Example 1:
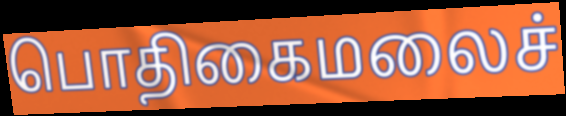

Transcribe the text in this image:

பொதிகைமலைச்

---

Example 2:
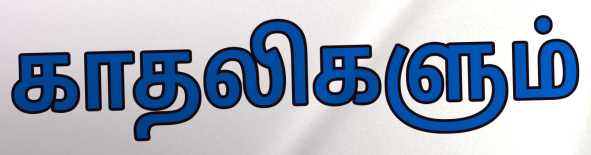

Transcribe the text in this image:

காதலிகளும்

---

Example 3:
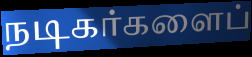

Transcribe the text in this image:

நடிகர்களைப்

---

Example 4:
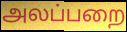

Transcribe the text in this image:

அலப்பறை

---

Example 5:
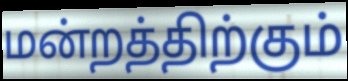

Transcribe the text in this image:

மன்றத்திற்கும்